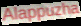
Alappuzha